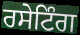
ਰਸੇਟਿੰਗ